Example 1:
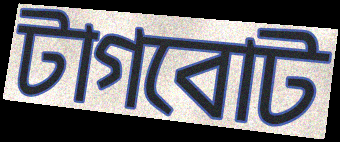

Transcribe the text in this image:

টাগবোট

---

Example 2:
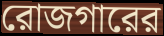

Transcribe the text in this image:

রোজগারের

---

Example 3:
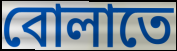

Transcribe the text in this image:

বোলাতে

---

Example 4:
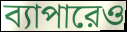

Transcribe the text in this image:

ব্যাপারেও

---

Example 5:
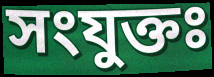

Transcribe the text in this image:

সংযুক্তঃ